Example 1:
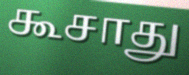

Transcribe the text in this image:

கூசாது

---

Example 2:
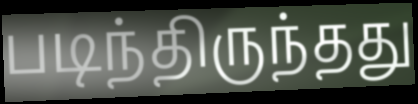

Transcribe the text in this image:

படிந்திருந்தது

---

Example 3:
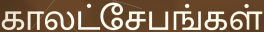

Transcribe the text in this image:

காலட்சேபங்கள்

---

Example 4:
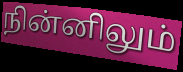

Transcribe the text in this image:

நின்னிலும்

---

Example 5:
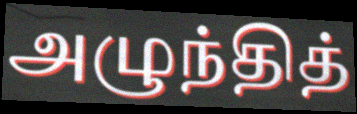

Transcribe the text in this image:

அழுந்தித்